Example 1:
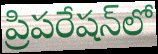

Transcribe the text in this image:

ప్రిపరేషన్‌లో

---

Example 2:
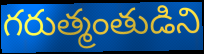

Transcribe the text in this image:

గరుత్మంతుడిని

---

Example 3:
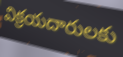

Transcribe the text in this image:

విక్రయదారులకు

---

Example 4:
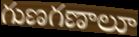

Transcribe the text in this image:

గుణగణాలూ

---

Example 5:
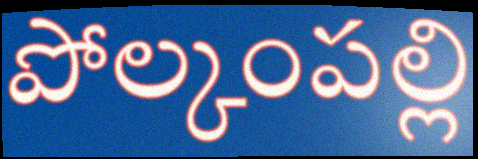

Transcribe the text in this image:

పోల్కంపల్లి